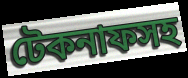
টেকনাফসহ